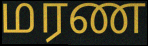
மரண